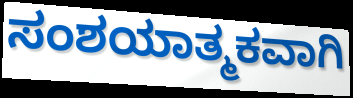
ಸಂಶಯಾತ್ಮಕವಾಗಿ